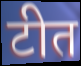
टीत